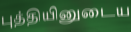
புத்தியினுடைய